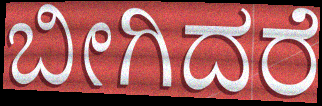
ಬೀಗಿದರೆ